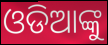
ଓଡିଆଙ୍କୁ